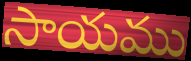
సాయము